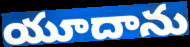
యూదాను